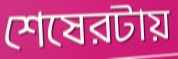
শেষেরটায়